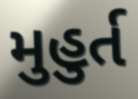
મુહુર્ત